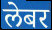
लेबर